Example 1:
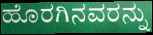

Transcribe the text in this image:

ಹೊರಗಿನವರನ್ನು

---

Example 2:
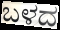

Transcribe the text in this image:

ಬಳದ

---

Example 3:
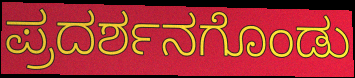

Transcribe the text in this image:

ಪ್ರದರ್ಶನಗೊಂಡು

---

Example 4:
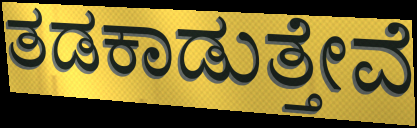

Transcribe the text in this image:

ತಡಕಾಡುತ್ತೇವೆ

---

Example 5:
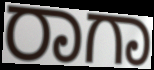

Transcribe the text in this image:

ರಾಗಾ